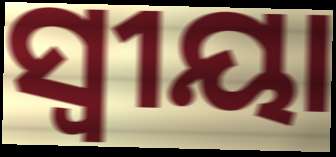
ସ୍ଵୀୟା